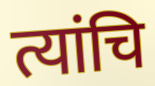
त्यांचि